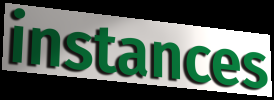
instances